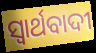
ସ୍ବାର୍ଥବାଦୀ